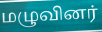
மழுவினர்